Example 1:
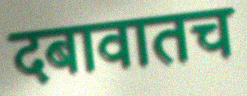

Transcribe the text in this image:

दबावातच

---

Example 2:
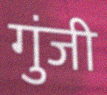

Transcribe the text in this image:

गुंजी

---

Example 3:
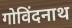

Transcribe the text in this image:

गोविंदनाथ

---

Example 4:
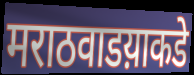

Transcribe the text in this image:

मराठवाडय़ाकडे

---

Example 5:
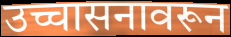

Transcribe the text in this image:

उच्चासनावरून